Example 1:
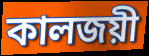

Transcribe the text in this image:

কালজয়ী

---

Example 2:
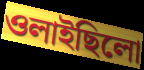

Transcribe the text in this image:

ওলাইছিলো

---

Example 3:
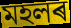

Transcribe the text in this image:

মহলৰ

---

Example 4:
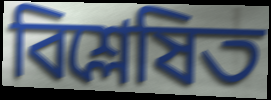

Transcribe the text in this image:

বিশ্লেষিত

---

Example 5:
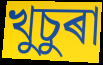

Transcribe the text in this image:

খুচুৰা